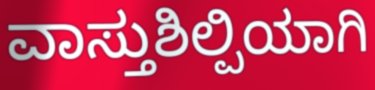
ವಾಸ್ತುಶಿಲ್ಪಿಯಾಗಿ